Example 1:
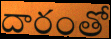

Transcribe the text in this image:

దారంతో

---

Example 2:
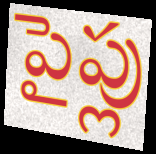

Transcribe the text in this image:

పైప్లు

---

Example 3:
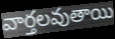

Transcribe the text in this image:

వార్తలవుతాయి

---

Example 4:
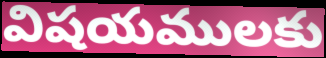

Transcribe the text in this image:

విషయములకు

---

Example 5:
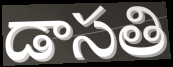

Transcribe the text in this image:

డాసతి